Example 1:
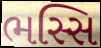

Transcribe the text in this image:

ભસ્સિ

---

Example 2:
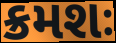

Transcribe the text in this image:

ક્રમશઃ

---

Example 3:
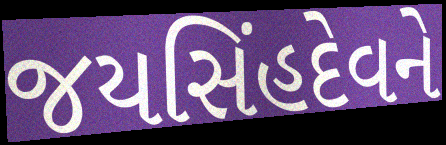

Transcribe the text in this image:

જયસિંહદેવને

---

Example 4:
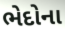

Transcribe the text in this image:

ભેદોના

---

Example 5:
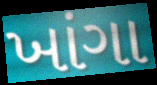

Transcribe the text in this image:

ખાંગા